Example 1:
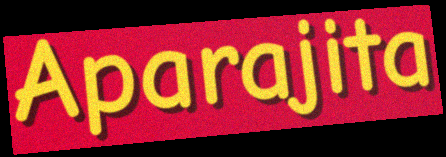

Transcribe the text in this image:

Aparajita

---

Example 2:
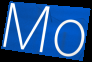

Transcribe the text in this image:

Mo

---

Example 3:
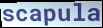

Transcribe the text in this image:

scapula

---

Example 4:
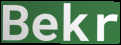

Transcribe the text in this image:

Bekr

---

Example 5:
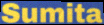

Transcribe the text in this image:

Sumita